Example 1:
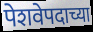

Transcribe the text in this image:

पेशवेपदाच्या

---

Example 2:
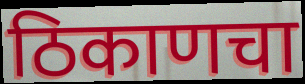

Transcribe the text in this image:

ठिकाणचा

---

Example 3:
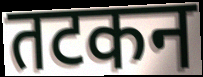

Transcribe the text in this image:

तटकन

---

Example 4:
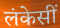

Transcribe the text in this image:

लंकेसीं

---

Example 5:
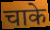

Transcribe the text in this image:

चाके